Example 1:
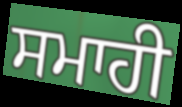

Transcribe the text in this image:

ਸਮਾਹੀ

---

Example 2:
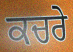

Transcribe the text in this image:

ਕਚਰੇ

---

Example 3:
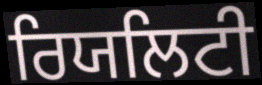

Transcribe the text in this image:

ਰਿਯਲਿਟੀ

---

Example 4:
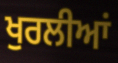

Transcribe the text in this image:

ਖੁਰਲੀਆਂ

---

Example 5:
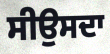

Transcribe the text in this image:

ਸੀਉਸਦਾ